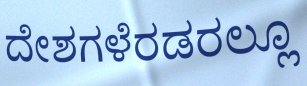
ದೇಶಗಳೆರಡರಲ್ಲೂ